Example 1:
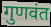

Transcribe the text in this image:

गुणवंत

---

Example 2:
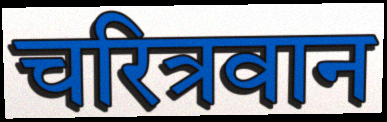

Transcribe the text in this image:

चरित्रवान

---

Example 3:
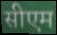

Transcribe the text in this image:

सीएम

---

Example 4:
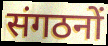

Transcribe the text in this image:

संगठनों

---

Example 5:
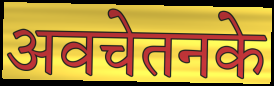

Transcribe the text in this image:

अवचेतनके